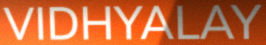
VIDHYALAY